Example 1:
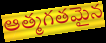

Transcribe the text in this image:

ఆత్మగతమైన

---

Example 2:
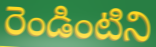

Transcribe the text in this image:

రెండింటిని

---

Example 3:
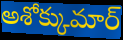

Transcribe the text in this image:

అశోక్కుమార్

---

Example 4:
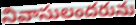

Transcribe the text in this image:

నివాసులందరును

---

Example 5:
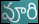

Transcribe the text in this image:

వూరి